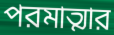
পরমাত্মার